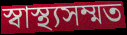
স্বাস্থ্যসম্মত